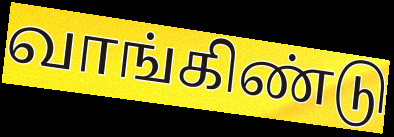
வாங்கிண்டு